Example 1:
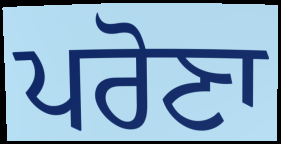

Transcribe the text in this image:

ਪਰੋਣਾ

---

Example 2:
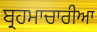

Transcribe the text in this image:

ਬ੍ਰਹਮਾਚਾਰੀਆ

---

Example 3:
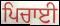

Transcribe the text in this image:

ਪਿਚਾਈ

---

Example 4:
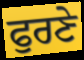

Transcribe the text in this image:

ਫੁਰਣੇ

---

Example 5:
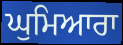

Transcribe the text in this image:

ਘੁਮਿਆਰਾ